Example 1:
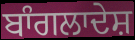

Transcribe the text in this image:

ਬਾੰਗਲਾਦੇਸ਼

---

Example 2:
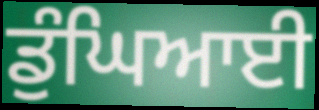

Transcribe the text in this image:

ਡੁੰਘਿਆਈ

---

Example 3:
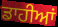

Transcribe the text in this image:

ਡਾਹੀਆਂ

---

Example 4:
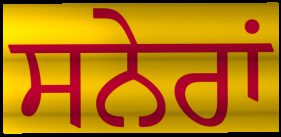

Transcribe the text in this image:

ਸਨੇਰਾਂ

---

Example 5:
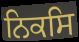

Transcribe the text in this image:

ਨਿਕਸਿ